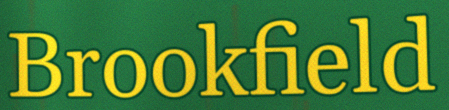
Brookfield